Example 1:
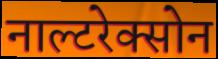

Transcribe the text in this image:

नाल्टरेक्सोन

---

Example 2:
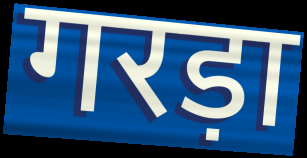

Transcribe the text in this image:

गरड़ा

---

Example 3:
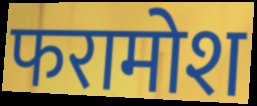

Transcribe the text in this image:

फरामोश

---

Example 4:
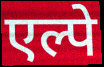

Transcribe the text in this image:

एल्पे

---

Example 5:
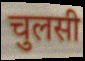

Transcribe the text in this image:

चुलसी